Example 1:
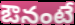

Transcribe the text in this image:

ఔనంటే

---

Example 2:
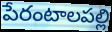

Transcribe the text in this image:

పేరంటాలపల్లి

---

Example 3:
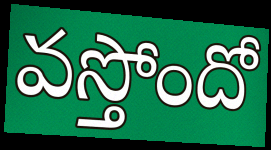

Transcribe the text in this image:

వస్తోందో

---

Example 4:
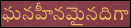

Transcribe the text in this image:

ఘనహీనమైనదిగా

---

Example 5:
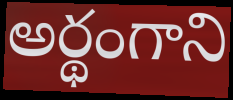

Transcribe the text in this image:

అర్థంగాని